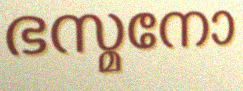
ഭസ്മനോ